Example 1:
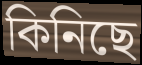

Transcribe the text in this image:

কিনিছে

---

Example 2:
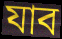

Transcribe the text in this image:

যাব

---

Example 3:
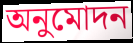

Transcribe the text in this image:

অনুমোদন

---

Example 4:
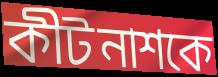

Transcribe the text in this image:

কীটনাশকে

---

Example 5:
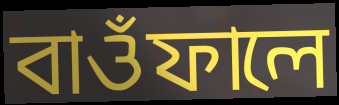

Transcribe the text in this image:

বাওঁফালে